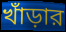
খাঁড়ার